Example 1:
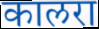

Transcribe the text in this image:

कालरा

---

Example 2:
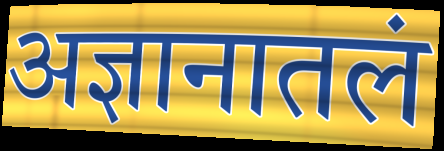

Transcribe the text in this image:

अज्ञानातलं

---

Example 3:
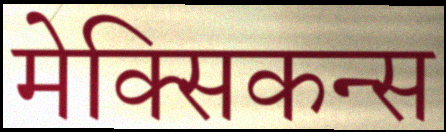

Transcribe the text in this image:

मेक्सिकन्स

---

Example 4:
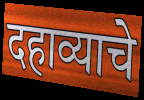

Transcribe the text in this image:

दहाव्याचे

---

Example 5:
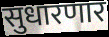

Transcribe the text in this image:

सुधारणार